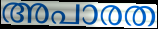
അപാരത